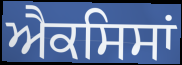
ਐਕਸਿਸਾਂ